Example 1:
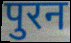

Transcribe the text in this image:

पुरन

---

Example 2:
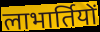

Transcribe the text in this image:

लाभार्तियों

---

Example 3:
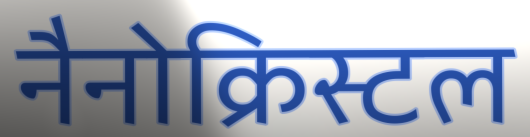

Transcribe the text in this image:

नैनोक्रिस्टल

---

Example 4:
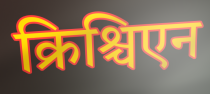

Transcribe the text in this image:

क्रिश्चिएन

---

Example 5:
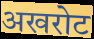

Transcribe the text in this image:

अखरोट